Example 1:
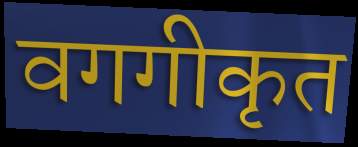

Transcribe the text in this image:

वगगीकृत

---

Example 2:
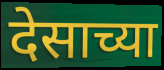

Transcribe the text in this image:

देसाच्या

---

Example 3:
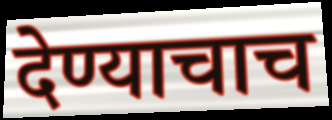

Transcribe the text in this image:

देण्याचाच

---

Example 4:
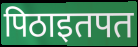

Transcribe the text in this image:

पिठाइतपत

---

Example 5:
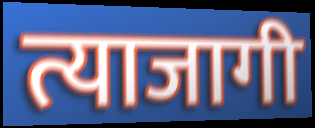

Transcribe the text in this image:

त्याजागी